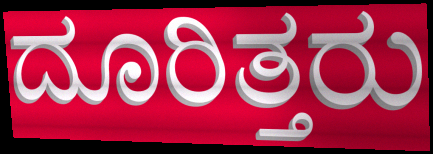
ದೂರಿತ್ತರು